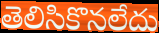
తెలిసికొనలేదు